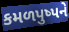
કમળપુષ્પને